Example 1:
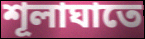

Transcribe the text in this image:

শূলাঘাতে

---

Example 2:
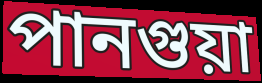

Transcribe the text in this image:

পানগুয়া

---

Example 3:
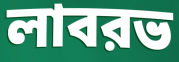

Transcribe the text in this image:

লাবরভ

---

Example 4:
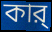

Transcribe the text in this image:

কার্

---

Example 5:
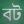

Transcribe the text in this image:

বট